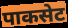
पाकसेट